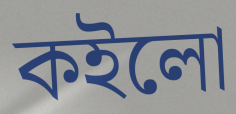
কইলো